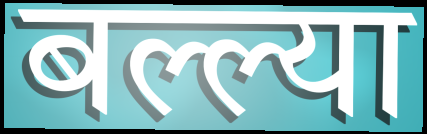
बल्ल्या